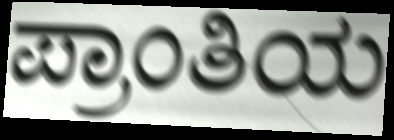
ಪ್ರಾಂತಿಯ